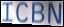
ICBN